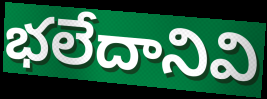
భలేదానివి